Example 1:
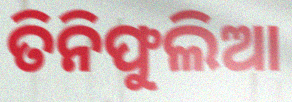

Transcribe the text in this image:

ତିନିଫୁଲିଆ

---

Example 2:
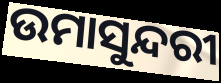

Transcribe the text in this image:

ଉମାସୁନ୍ଦରୀ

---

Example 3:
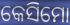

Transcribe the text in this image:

କେସିମୋ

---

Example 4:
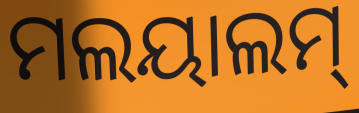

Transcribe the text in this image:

ମଲୟାଲମ୍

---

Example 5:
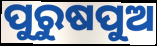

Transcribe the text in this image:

ପୁରୁଷପୁଅ